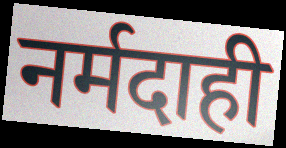
नर्मदाही